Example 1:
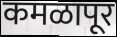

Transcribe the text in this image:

कमळापूर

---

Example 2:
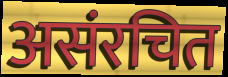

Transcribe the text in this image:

असंरचित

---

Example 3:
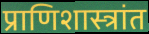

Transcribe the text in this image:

प्राणिशास्त्रांत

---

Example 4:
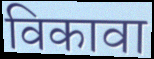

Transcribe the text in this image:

विकावा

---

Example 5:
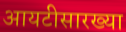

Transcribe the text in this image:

आयटीसारख्या